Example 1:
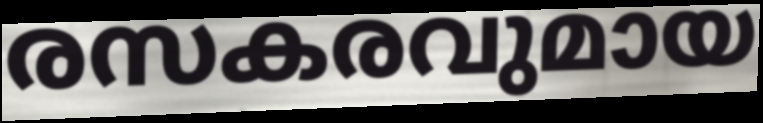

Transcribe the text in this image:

രസകരവുമായ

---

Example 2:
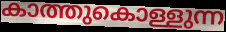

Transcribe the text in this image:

കാത്തുകൊള്ളുന്ന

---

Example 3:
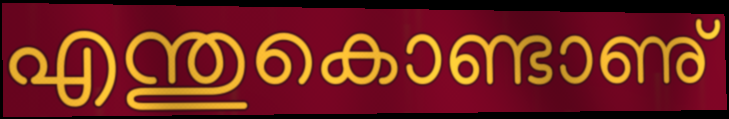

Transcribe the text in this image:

എന്തുകൊണ്ടാണു്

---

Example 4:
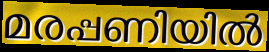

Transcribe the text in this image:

മരപ്പണിയിൽ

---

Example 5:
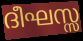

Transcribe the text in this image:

ദീഘസ്സ